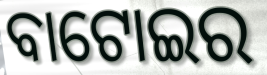
ବାଟୋଇର